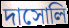
দাসোলি